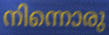
നിന്നൊരു